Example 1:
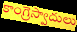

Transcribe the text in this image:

కాంగ్రెస్వాదులు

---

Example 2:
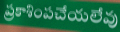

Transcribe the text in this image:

ప్రకాశింపచేయలేవు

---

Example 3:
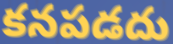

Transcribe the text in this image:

కనపడదు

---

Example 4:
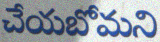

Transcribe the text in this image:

చేయబోమని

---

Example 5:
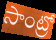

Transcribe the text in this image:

సాంట్రో